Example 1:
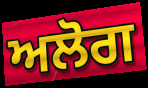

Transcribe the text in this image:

ਅਲੋਗ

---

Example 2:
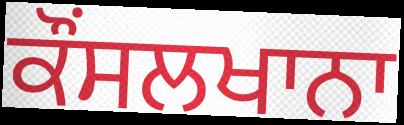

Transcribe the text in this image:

ਕੌਂਸਲਖਾਨਾ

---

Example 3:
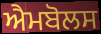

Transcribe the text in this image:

ਐਮਬੋਲਸ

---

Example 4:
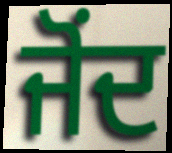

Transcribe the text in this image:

ਜੋਂਦ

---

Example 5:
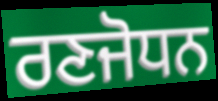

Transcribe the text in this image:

ਰਣਜੋਧਨ